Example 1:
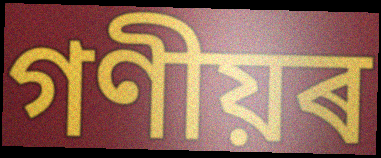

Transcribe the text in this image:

গণীয়ৰ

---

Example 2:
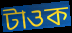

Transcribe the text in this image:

টাওক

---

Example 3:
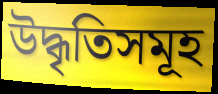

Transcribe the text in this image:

উদ্ধৃতিসমূহ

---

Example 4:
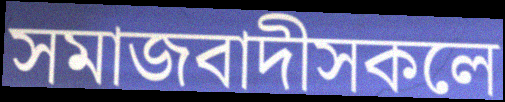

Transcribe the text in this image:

সমাজবাদীসকলে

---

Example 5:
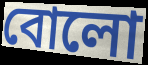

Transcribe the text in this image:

বোলো